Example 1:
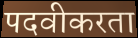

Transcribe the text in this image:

पदवीकरता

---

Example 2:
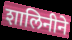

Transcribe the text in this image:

शालिनीने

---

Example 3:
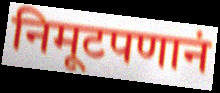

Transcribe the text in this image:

निमूटपणानं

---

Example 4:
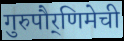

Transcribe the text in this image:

गुरुपौर्णिमेची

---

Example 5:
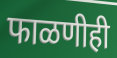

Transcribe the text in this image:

फाळणीही